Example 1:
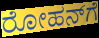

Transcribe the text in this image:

ರೋಹನ್‌ಗೆ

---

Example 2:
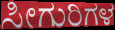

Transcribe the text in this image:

ಸೀಗುರಿಗಳ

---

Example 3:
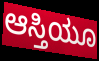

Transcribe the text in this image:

ಆಸ್ತಿಯೂ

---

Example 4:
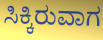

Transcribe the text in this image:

ಸಿಕ್ಕಿರುವಾಗ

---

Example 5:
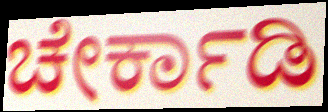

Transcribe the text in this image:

ಚೇರ್ಕಾಡಿ